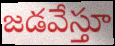
జడవేస్తూ